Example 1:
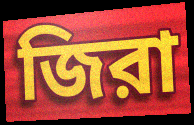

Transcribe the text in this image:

জিরা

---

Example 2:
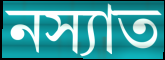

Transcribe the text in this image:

নস্যাত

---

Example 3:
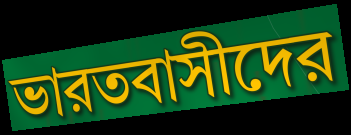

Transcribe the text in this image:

ভারতবাসীদের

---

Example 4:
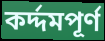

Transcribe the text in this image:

কর্দ্দমপূর্ণ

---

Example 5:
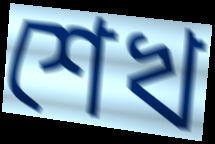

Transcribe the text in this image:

শেখ